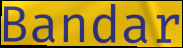
Bandar